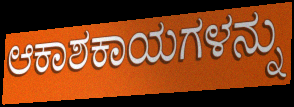
ಆಕಾಶಕಾಯಗಳನ್ನು